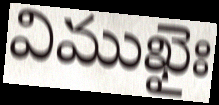
విముఖైః